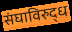
संघाविरुद्ध